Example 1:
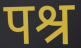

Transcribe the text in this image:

पश्र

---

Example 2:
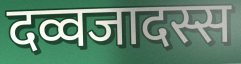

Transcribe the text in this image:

दव्वजादस्स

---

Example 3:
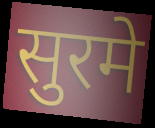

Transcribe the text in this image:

सुरमे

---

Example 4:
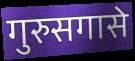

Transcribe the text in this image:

गुरुसगासे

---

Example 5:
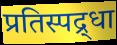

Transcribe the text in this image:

प्रतिस्पद्र्धा